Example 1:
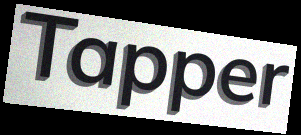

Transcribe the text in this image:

Tapper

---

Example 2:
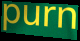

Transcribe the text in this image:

purn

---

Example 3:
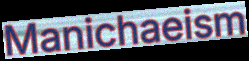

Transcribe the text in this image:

Manichaeism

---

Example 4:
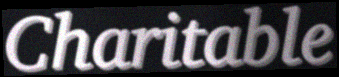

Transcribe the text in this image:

Charitable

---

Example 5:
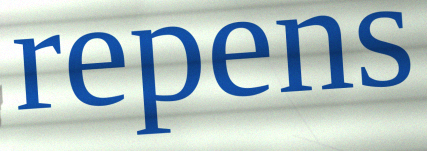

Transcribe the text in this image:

repens